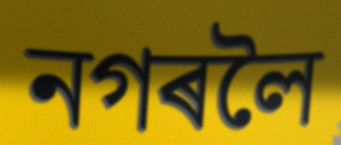
নগৰলৈ